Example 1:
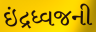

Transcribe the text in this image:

ઇંદ્રધ્વજની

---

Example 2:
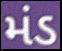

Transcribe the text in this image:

મંડ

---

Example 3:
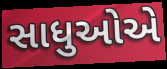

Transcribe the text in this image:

સાધુઓએ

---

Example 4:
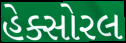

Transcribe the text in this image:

હેક્સોરલ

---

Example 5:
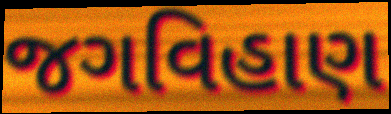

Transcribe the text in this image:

જગવિહાણ